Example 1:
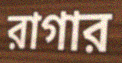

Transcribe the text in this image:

রাগার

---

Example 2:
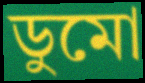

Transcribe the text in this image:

ডুমো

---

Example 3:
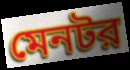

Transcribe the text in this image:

মেনটর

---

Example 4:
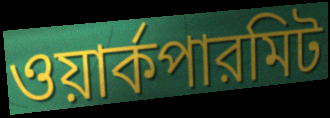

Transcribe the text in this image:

ওয়ার্কপারমিট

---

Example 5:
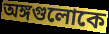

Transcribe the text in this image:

অঙ্গগুলোকে